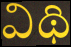
విథి